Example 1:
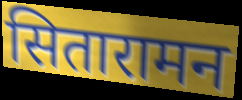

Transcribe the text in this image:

सितारामन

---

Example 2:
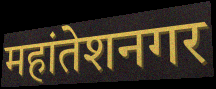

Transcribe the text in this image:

महांतेशनगर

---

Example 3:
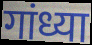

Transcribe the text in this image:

गांध्या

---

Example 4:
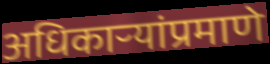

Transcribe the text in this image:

अधिकाऱ्यांप्रमाणे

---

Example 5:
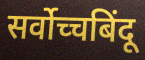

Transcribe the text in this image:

सर्वोच्चबिंदू